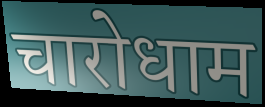
चारोधाम